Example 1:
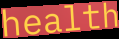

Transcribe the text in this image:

health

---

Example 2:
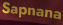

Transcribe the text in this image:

Sapnana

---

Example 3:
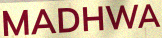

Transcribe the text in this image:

MADHWA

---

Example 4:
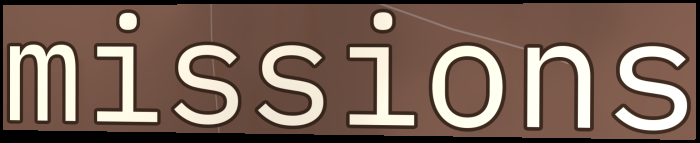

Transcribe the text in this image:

missions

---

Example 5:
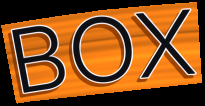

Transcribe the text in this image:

BOX